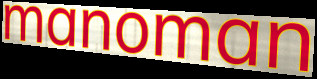
manoman